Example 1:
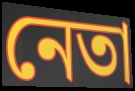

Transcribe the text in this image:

নেতা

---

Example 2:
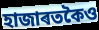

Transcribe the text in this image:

হাজাৰতকৈও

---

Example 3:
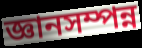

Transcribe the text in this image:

জ্ঞানসম্পন্ন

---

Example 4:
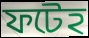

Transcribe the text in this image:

ফটেহ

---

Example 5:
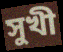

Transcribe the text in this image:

সুখী